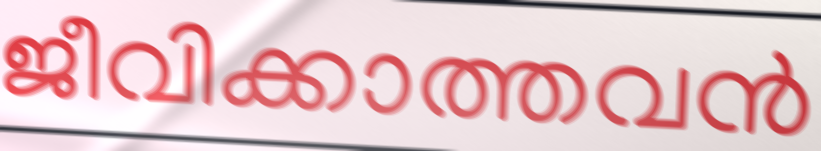
ജീവിക്കാത്തവൻ